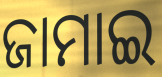
ଜାମାଇ